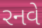
રનવે